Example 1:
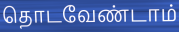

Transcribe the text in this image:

தொடவேண்டாம்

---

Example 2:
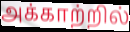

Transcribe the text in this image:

அக்காற்றில்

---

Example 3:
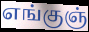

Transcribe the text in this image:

எங்குஞ்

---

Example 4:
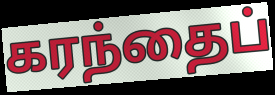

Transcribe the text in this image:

கரந்தைப்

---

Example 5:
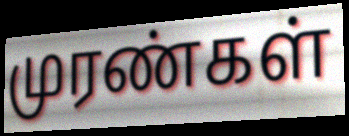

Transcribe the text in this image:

முரண்கள்